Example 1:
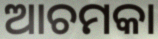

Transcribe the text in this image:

ଆଚମକା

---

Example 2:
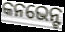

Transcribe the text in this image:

କନଭେନ୍ଟ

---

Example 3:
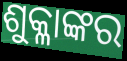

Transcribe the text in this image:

ଶୁକ୍ଳାଙ୍କର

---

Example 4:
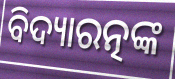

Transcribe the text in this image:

ବିଦ୍ୟାରତ୍ନଙ୍କ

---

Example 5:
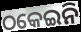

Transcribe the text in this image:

ଠକେଇନି